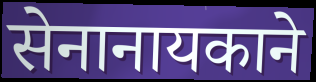
सेनानायकाने